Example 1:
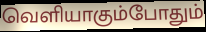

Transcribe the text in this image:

வெளியாகும்போதும்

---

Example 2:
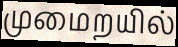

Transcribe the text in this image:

முமைறயில்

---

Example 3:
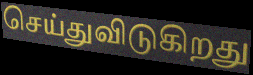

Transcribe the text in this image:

செய்துவிடுகிறது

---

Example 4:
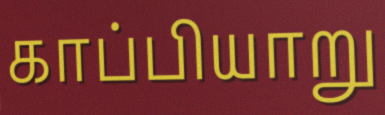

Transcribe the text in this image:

காப்பியாறு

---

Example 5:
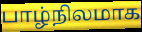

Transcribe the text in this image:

பாழ்நிலமாக